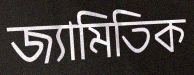
জ্যামিতিক